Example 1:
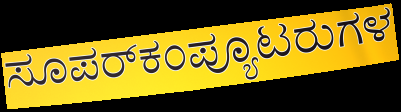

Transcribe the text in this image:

ಸೂಪರ್‌ಕಂಪ್ಯೂಟರುಗಳ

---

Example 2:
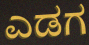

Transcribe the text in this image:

ಎಡಗ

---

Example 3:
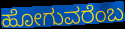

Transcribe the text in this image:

ಹೋಗುವರೆಂಬ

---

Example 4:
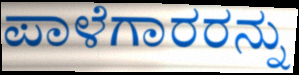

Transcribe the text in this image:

ಪಾಳೆಗಾರರನ್ನು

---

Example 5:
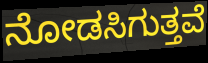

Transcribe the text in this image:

ನೋಡಸಿಗುತ್ತವೆ